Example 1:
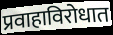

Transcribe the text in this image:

प्रवाहाविरोधात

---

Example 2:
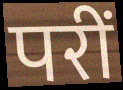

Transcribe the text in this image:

परीं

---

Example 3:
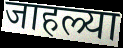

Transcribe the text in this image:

जाहल्या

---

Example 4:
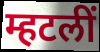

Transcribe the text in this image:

म्हटलीं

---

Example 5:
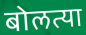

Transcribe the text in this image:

बोलत्या